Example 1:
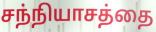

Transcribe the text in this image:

சந்நியாசத்தை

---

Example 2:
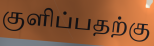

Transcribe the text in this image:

குளிப்பதற்கு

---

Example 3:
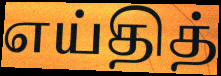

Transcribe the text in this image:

எய்தித்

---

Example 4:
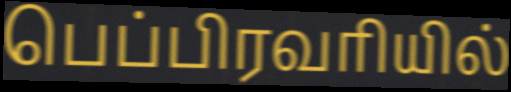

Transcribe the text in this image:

பெப்பிரவரியில்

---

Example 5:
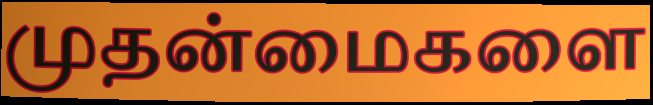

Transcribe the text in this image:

முதன்மைகளை